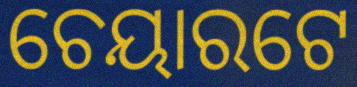
ଚେୟାରଟେ